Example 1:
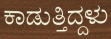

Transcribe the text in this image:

ಕಾಡುತ್ತಿದ್ದಳು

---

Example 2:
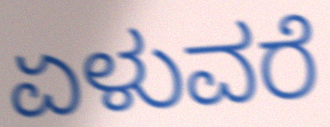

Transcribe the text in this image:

ಏಳುವರೆ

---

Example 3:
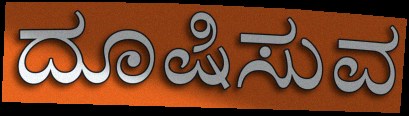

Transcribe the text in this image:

ದೂಷಿಸುವ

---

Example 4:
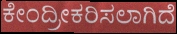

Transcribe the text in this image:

ಕೇಂದ್ರೀಕರಿಸಲಾಗಿದೆ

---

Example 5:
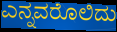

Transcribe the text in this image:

ಎನ್ನವರೊಲಿದು